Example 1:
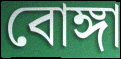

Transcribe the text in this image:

বোঙ্গা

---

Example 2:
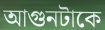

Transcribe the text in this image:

আগুনটাকে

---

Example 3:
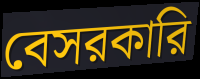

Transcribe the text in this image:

বেসরকারি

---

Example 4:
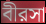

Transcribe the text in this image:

বীরসা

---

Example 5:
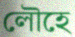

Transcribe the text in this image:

লৌহে